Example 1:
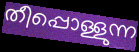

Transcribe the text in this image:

തീപ്പൊള്ളുന്ന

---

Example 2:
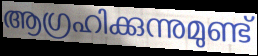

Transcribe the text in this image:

ആഗ്രഹിക്കുന്നുമുണ്ട്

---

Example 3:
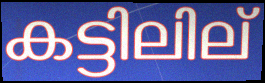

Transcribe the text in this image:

കട്ടിലില്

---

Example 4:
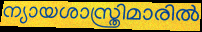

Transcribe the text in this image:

ന്യായശാസ്ത്രിമാരിൽ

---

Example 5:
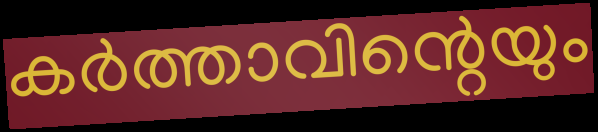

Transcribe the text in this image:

കർത്താവിന്റെയും